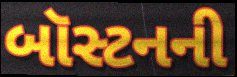
બૉસ્ટનની